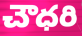
చౌధరి